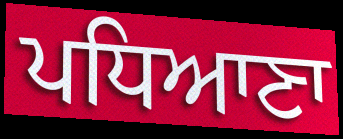
ਪਧਿਆਣਾ